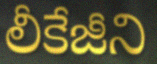
లీకేజీని